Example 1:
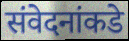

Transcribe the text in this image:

संवेदनांकडे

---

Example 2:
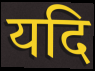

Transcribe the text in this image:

यदि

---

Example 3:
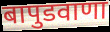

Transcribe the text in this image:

बापुडवाणा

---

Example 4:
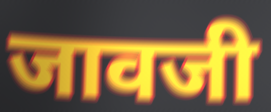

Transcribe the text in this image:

जावजी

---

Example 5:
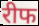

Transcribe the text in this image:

रीफ